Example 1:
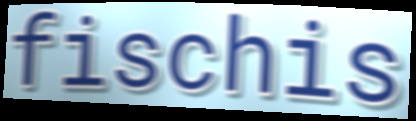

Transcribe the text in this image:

fischis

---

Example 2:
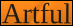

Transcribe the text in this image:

Artful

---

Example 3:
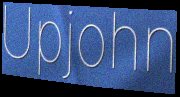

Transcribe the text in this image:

Upjohn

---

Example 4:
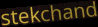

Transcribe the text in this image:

stekchand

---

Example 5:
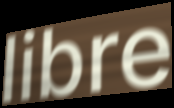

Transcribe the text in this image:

libre